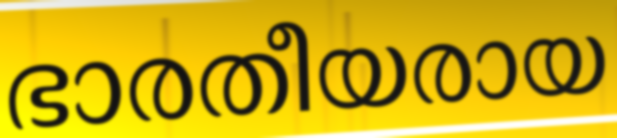
ഭാരതീയരായ